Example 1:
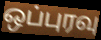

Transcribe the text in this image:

ஒப்புரவு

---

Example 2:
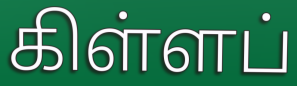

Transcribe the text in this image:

கிள்ளப்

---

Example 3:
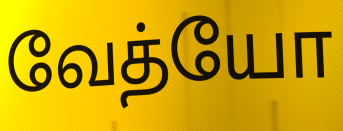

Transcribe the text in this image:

வேத்யோ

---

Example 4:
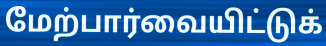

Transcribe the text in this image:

மேற்பார்வையிட்டுக்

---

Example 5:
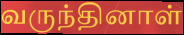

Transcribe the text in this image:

வருந்தினாள்